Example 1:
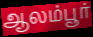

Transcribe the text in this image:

ஆலம்பூர்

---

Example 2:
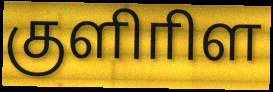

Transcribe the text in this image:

குளிரிள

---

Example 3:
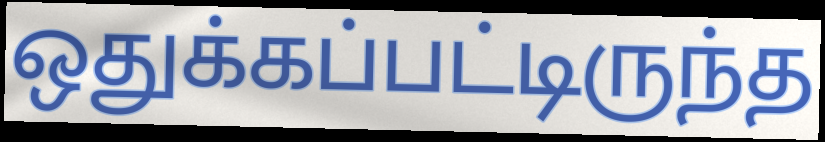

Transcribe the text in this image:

ஒதுக்கப்பட்டிருந்த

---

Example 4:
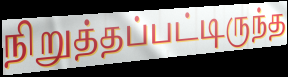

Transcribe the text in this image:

நிறுத்தப்பட்டிருந்த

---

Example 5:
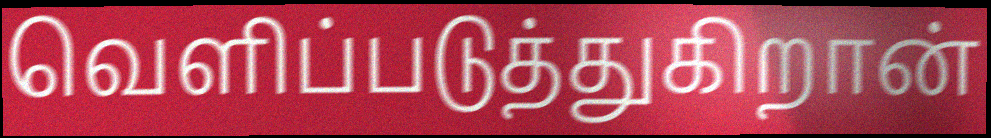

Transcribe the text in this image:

வெளிப்படுத்துகிறான்